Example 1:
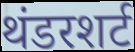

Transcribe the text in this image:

थंडरशर्ट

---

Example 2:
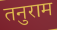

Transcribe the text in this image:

तनुराम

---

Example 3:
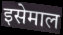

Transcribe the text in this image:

इसेमाल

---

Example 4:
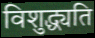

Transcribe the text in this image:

विशुद्ध्यति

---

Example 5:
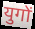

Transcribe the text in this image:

युगों